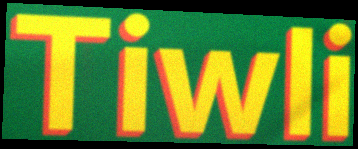
Tiwli